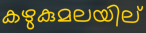
കഴുകുമലയില്